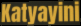
Katyayini